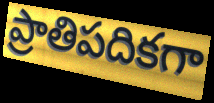
ప్రాతిపదికగా